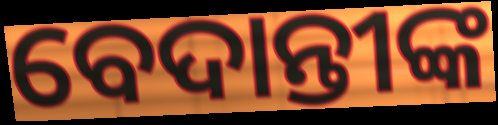
ବେଦାନ୍ତୀଙ୍କ